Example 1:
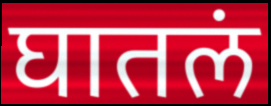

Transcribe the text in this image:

घातलं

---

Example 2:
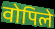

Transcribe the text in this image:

वोपिले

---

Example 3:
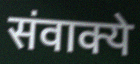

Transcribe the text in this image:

संवाक्ये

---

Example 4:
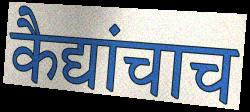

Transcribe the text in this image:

कैद्यांचाच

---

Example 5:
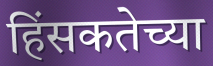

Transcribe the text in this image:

हिंसकतेच्या